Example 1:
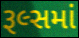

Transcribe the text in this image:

રૂલ્સમાં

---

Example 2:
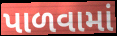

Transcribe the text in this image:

પાળવામાં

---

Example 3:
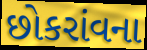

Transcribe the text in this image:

છોકરાંવના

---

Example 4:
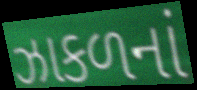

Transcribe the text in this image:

ઝાકળનાં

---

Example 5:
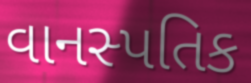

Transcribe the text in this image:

વાનસ્પતિક